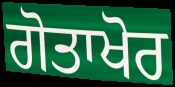
ਗੋਤਾਖੋਰ